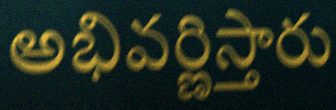
అభివర్ణిస్తారు